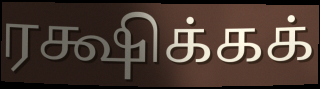
ரக்ஷிக்கக்